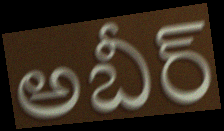
అబీర్